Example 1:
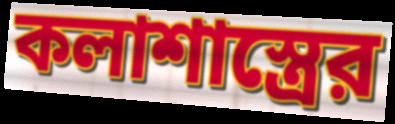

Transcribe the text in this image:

কলাশাস্ত্রের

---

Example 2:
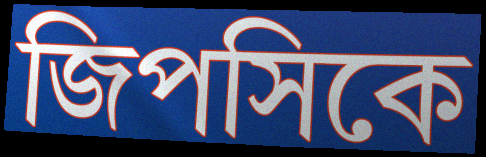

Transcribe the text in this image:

জিপসিকে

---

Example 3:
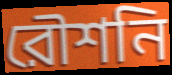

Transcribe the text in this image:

রৌশনি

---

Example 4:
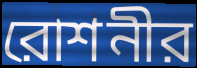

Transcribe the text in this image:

রোশনীর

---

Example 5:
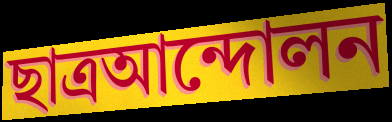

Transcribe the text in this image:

ছাত্রআন্দোলন